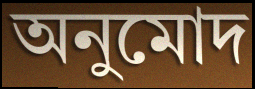
অনুমোদ